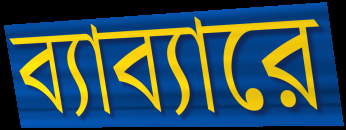
ব্যাব্যারে